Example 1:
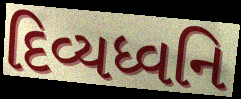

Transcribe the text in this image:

દિવ્યધ્વનિ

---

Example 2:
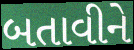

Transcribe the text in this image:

બતાવીને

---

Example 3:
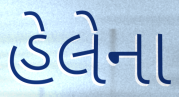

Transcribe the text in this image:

હેલેના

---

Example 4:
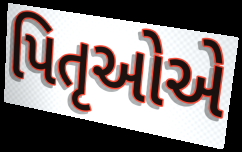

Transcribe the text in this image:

પિતૃઓેએ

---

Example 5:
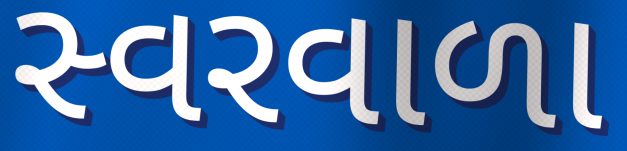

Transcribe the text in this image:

સ્વરવાળા